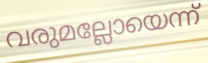
വരുമല്ലോയെന്ന്